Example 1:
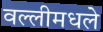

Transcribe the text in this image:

वल्लीमधले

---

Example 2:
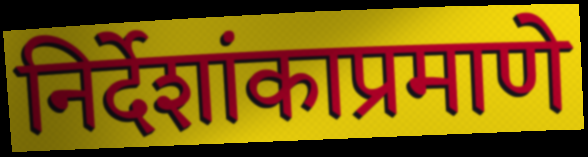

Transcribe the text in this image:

निर्देशांकाप्रमाणे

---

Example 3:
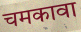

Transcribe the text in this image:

चमकावा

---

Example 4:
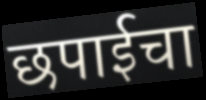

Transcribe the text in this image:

छपाईचा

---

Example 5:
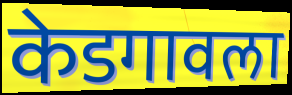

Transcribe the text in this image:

केडगावला